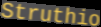
Struthio